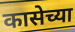
कासेच्या